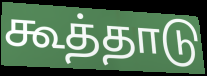
கூத்தாடு